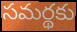
సమర్థకు